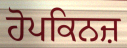
ਹੋਪਕਿਨਜ਼